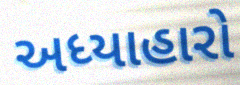
અધ્યાહારો